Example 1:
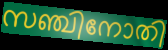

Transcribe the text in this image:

സഞ്ചിനോതി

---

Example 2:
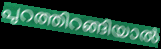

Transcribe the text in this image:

പുറത്തിറങ്ങിയാൽ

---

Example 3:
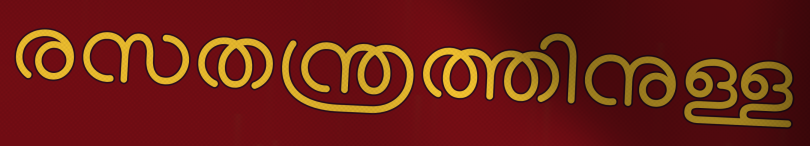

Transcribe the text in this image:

രസതന്ത്രത്തിനുള്ള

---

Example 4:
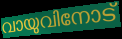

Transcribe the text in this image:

വായുവിനോട്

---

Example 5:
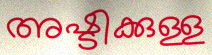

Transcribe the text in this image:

അഷ്ടിക്കുള്ള